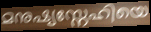
മനുഷ്യസ്നേഹിയെ